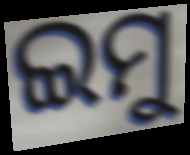
ଇମୁ